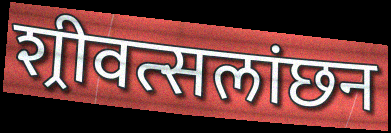
श्रीवत्सलांछन